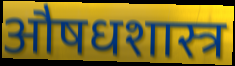
औषधशास्त्र